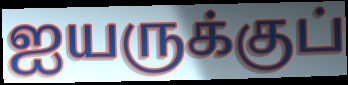
ஐயருக்குப்